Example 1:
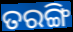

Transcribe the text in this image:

ତରଙ୍ଗି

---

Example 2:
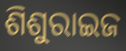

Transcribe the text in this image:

ଶିଶୁରାଇଜ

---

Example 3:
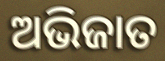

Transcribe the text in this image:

ଅଭିଜାତ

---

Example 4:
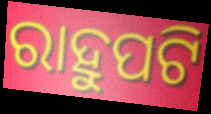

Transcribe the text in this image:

ରାହୁପଟି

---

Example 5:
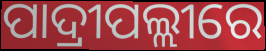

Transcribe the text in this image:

ପାଦ୍ରୀପଲ୍ଲୀରେ